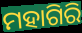
ମହାଗିରି